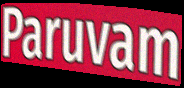
Paruvam